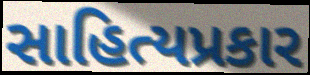
સાહિત્યપ્રકાર